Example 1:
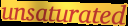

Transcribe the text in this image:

unsaturated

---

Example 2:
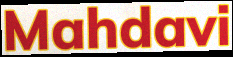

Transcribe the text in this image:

Mahdavi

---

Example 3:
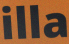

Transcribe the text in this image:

illa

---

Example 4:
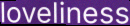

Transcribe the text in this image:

loveliness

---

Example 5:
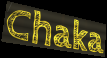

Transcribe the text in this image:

Chaka